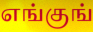
எங்குங்